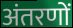
अंतरणों